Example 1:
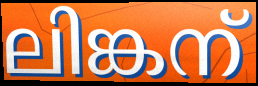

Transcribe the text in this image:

ലിങ്കന്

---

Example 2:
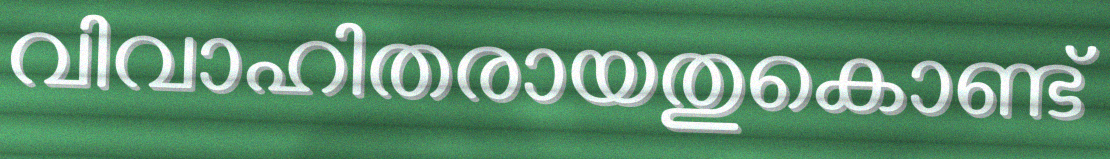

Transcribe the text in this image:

വിവാഹിതരായതുകൊണ്ട്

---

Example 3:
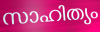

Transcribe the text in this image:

സാഹിത്യം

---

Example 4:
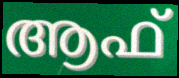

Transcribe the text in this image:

ആഫ്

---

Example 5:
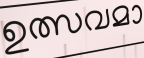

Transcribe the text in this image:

ഉത്സവമാ